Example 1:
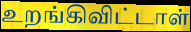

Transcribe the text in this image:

உறங்கிவிட்டாள்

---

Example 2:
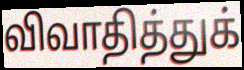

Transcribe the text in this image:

விவாதித்துக்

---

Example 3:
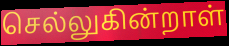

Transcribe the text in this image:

செல்லுகின்றாள்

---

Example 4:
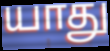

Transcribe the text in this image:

யாது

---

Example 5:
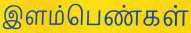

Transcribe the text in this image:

இளம்பெண்கள்